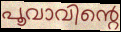
പൂവാവിന്റെ